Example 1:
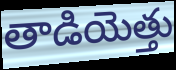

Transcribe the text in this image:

తాడియెత్తు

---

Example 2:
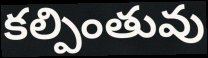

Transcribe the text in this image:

కల్పింతువు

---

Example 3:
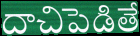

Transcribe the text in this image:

దాచిపెడితే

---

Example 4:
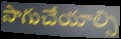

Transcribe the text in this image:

సాగుచేయాల్సి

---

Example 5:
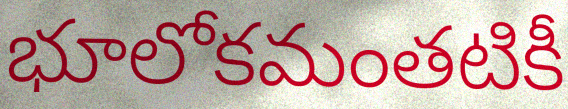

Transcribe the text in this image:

భూలోకమంతటికీ